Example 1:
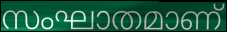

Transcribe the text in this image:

സംഘാതമാണ്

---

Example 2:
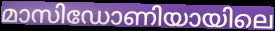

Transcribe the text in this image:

മാസിഡോണിയായിലെ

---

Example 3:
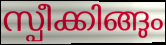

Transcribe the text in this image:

സ്പീക്കിങ്ങും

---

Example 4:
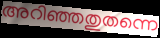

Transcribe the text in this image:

അറിഞ്ഞതുതന്നെ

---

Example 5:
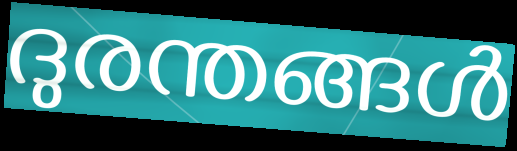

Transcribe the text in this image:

ദുരന്തങ്ങൾ